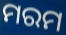
ମରମ